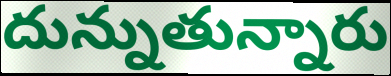
దున్నుతున్నారు